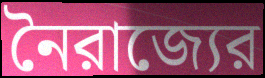
নৈরাজ্যের